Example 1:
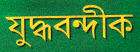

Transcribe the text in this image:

যুদ্ধবন্দীক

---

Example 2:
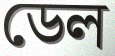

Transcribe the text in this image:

ডেল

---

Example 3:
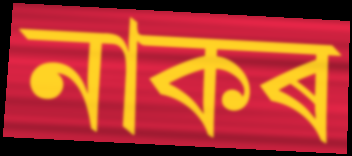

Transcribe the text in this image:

নাকৰ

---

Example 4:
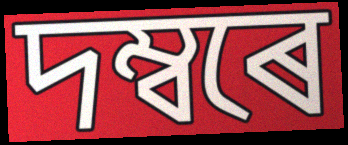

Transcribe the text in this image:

দম্বৰে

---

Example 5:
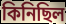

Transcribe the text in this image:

কিনিছিল